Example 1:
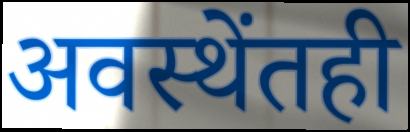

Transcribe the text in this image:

अवस्थेंतही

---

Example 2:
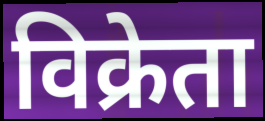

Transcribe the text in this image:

विक्रेता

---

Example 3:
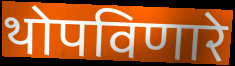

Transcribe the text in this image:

थोपविणारे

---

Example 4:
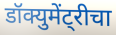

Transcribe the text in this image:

डॉक्युमेंट्रीचा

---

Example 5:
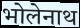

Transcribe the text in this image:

भोलेनाथ